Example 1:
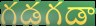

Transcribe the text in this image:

గడగడా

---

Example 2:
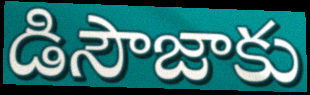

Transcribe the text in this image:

డిసౌజాకు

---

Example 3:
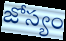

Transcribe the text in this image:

జోస్యం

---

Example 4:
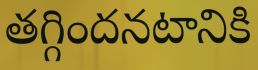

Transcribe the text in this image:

తగ్గిందనటానికి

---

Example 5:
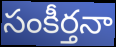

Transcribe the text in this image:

సంకీర్తనా